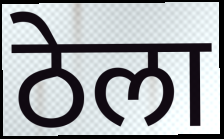
ठेला